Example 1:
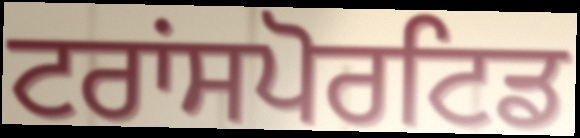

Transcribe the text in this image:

ਟਰਾਂਸਪੋਰਟਿਡ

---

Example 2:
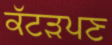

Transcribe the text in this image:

ਕੱਟੜਪਣ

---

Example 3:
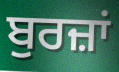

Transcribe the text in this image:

ਬੁਰਜ਼ਾਂ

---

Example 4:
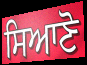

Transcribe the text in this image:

ਸਿਆਣੋ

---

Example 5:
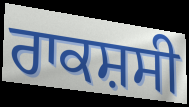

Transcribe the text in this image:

ਰਾਕਸ਼ਸੀ